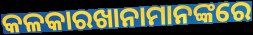
କଳକାରଖାନାମାନଙ୍କରେ